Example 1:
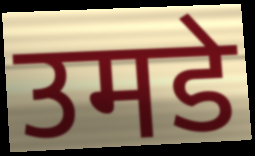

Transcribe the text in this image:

उमडे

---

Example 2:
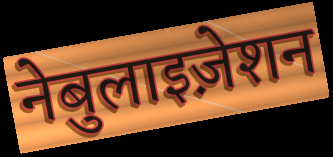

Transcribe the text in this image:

नेबुलाइज़ेशन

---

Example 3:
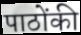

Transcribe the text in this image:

पाठोंकी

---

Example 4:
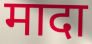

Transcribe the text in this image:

मादा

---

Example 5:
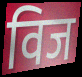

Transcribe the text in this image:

विज